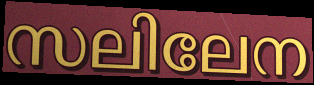
സലിലേന